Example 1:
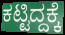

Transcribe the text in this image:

ಕಟ್ಟಿದ್ದಕ್ಕೆ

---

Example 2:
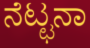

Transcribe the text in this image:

ನೆಟ್ಟನಾ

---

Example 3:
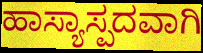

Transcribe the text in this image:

ಹಾಸ್ಯಾಸ್ಪದವಾಗಿ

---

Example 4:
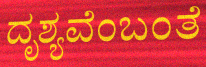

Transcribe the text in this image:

ದೃಶ್ಯವೆಂಬಂತೆ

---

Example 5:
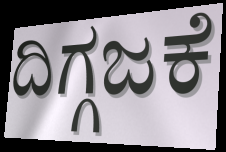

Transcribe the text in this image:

ದಿಗ್ಗಜಕೆ